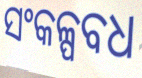
ସଂକଳ୍ପବଧ